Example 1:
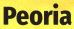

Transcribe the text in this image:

Peoria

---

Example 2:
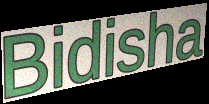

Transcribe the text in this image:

Bidisha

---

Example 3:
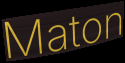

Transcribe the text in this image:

Maton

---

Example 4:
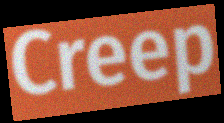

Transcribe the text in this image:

Creep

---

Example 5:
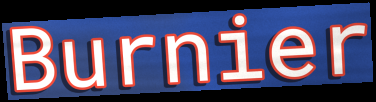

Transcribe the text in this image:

Burnier